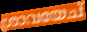
ശ്രാവയേച്